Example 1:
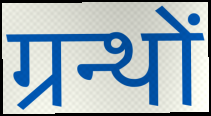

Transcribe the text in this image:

ग्रन्थों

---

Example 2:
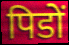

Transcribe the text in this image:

पिडों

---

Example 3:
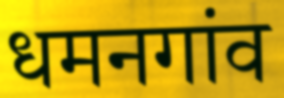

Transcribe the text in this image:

धमनगांव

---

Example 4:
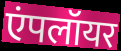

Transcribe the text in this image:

एंपलॉयर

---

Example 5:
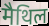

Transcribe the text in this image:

मैथिल